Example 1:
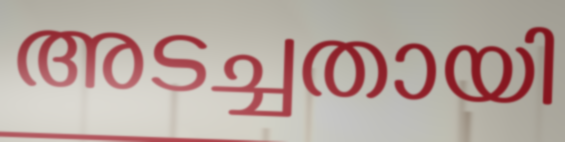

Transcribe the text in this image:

അടച്ചതായി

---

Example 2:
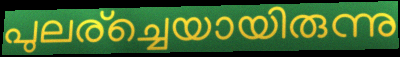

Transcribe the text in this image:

പുലര്ച്ചെയായിരുന്നു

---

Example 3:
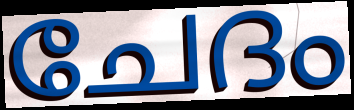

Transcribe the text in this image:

ചേദം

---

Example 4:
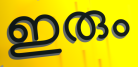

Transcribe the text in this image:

ഇരും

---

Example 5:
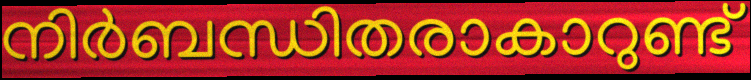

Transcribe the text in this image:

നിർബന്ധിതരാകാറുണ്ട്